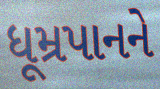
ધૂમ્રપાનને